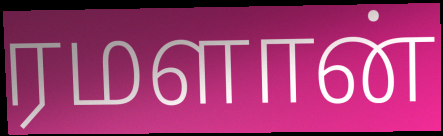
ரமளான்